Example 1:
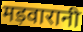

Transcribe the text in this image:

मड़वारानी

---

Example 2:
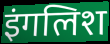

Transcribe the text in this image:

इंगलिश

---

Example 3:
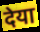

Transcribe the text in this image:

देया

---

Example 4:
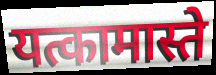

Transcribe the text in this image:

यत्कामास्ते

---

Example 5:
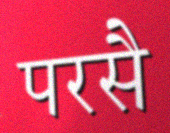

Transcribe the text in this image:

परसै